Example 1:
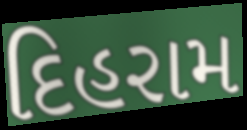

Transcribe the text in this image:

દિહરામ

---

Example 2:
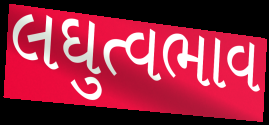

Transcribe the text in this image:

લઘુત્વભાવ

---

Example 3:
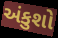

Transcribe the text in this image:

અંકુશો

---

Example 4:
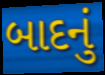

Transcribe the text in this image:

બાદનું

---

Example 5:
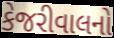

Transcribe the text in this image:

કેજરીવાલનો